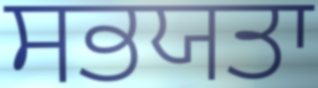
ਸਭਯਤਾ